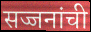
सज्जनांची